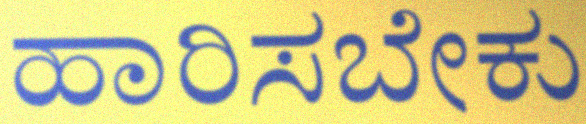
ಹಾರಿಸಬೇಕು